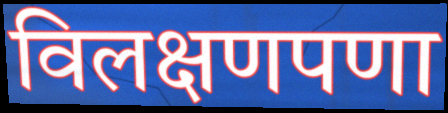
विलक्षणपणा